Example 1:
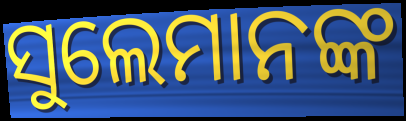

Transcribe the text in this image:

ସୁଲେମାନଙ୍କ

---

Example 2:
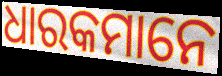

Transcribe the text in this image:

ଧାରକମାନେ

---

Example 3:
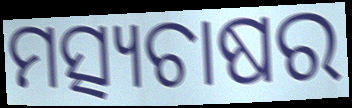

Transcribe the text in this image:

ମତ୍ସ୍ୟଚାଷର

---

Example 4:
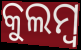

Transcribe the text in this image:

କୁଲମ୍ବ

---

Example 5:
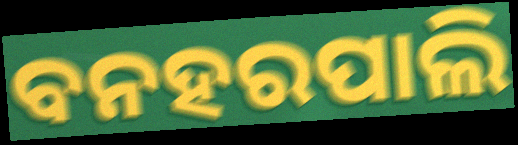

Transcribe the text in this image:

ବନହରପାଲି